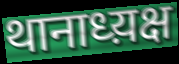
थानाध्य़क्ष